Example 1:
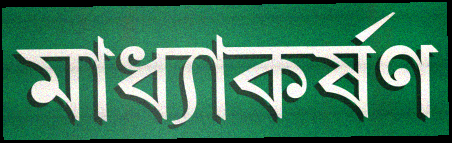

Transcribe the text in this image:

মাধ্যাকর্ষণ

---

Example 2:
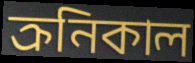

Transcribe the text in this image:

ক্রনিকাল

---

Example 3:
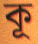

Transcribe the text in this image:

কূ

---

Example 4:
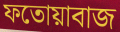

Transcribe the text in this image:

ফতোয়াবাজ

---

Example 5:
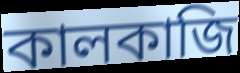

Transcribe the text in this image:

কালকাজি